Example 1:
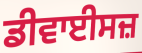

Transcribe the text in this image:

ਡੀਵਾਈਸਜ਼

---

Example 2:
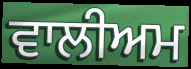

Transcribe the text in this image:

ਵਾਲੀਅਮ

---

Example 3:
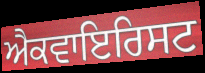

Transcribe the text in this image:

ਐਕਵਾਇਰਿਸਟ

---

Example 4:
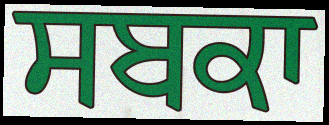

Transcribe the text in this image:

ਸਬਕਾ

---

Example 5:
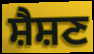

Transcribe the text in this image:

ਸ਼ੈਸ਼ਣ